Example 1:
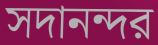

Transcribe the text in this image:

সদানন্দর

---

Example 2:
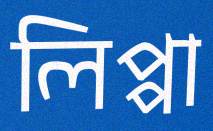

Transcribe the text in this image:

লিপ্পা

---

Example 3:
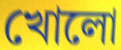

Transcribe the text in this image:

খোলো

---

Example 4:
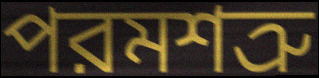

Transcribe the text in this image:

পরমশত্রু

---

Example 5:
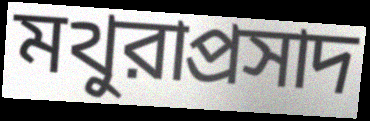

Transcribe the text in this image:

মথুরাপ্রসাদ